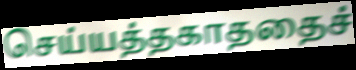
செய்யத்தகாததைச்